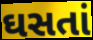
ઘસતાં